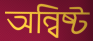
অন্বিষ্ট